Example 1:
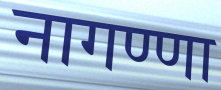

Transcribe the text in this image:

नागण्णा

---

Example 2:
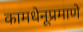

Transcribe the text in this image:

कामधेनूप्रमाणे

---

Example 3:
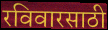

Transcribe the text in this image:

रविवारसाठी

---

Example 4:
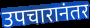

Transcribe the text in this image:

उपचारानंतर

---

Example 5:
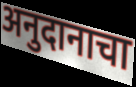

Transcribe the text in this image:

अनुदानाचा